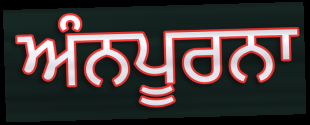
ਅੰਨਪੂਰਨਾ